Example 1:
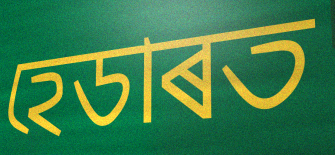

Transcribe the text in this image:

হেডাৰত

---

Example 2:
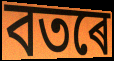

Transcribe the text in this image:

বতৰে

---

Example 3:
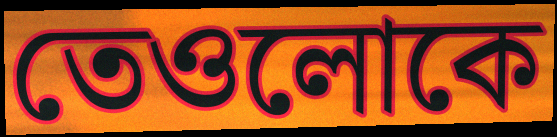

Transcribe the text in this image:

তেওলোকে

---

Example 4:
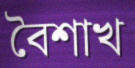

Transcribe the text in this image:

বৈশাখ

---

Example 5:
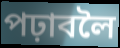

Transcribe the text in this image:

পঢ়াবলৈ